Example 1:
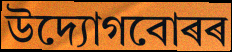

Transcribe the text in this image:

উদ্যোগবোৰৰ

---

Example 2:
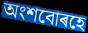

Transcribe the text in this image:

অংশবোৰহে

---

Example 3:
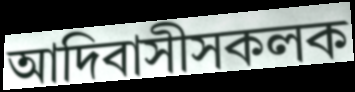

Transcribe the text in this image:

আদিবাসীসকলক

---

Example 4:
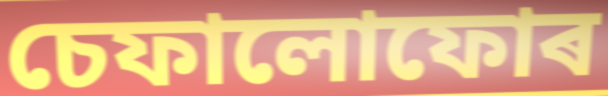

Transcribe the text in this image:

চেফালোফোৰ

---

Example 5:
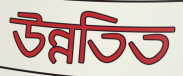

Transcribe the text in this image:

উন্নতিত